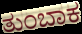
ತುಂಬಾಕ